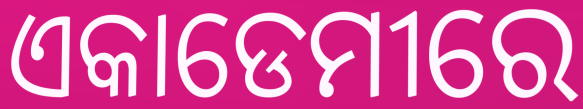
ଏକାଡେମୀରେ